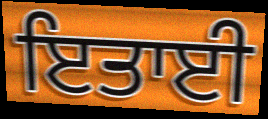
ਇਤਾਈ